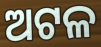
ଅଟଳ